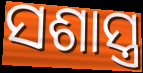
ସଶାସ୍ତ୍ର